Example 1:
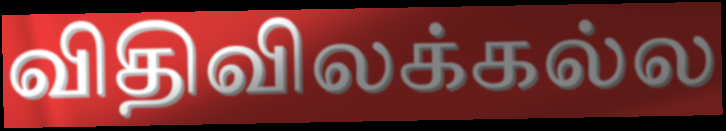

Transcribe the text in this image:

விதிவிலக்கல்ல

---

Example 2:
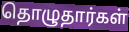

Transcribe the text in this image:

தொழுதார்கள்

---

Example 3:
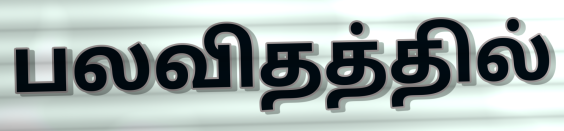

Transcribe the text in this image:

பலவிதத்தில்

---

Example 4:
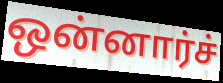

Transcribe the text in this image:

ஒன்னார்ச்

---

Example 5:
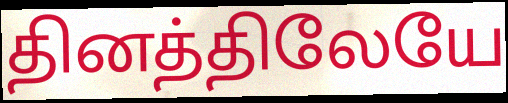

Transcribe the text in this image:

தினத்திலேயே